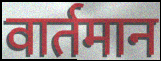
वार्तमान